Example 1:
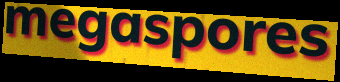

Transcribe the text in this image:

megaspores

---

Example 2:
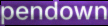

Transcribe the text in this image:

pendown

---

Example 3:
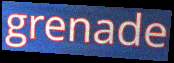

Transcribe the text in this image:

grenade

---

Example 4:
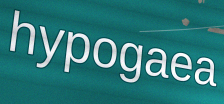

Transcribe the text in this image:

hypogaea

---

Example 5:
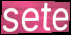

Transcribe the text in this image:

sete